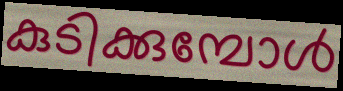
കുടിക്കുമ്പോൾ